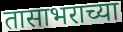
तासाभराच्या